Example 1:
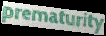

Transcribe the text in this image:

prematurity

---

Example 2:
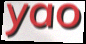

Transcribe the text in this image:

yao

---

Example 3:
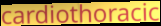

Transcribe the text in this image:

cardiothoracic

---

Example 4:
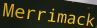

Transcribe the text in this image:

Merrimack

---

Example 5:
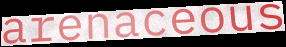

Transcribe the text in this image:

arenaceous